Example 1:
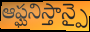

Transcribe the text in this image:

ఆఫ్ఘనిస్తాన్పై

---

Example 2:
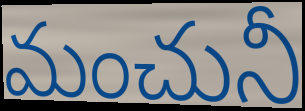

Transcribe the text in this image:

మంచునీ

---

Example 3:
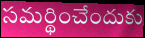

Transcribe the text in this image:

సమర్థించేందుకు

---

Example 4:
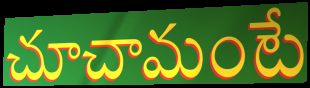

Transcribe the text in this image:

చూచామంటే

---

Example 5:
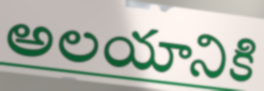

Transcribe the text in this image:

అలయానికి